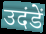
उदंडें